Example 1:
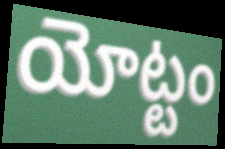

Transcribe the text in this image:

యోట్టం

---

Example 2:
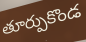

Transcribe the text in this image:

తూర్పుకొండ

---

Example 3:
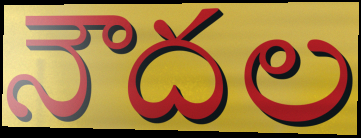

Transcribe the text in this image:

నౌదల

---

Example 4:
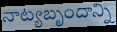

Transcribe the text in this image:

నాట్యబృందాన్ని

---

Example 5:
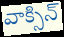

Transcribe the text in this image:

వాక్సిన్